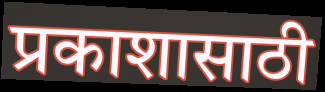
प्रकाशासाठी